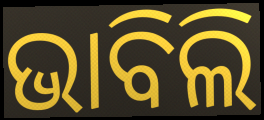
ଭାବିଲି